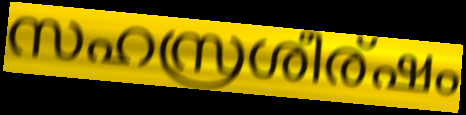
സഹസ്രശീര്ഷം